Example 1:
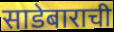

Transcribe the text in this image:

साडेबाराची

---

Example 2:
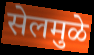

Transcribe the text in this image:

सेलमुळे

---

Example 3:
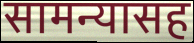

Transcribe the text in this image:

सामन्यासह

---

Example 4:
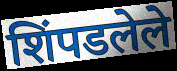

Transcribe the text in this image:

शिंपडलेले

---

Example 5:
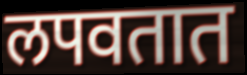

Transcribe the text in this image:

लपवतात